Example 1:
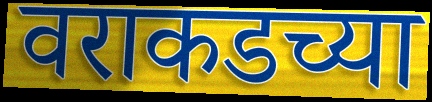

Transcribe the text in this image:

वराकडच्या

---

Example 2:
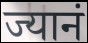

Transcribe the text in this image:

ज्यानं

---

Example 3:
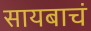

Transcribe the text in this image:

सायबाचं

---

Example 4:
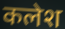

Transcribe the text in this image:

कलेश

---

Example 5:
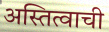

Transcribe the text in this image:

अस्तित्वाची